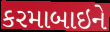
કરમાબાઇને